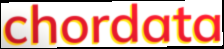
chordata